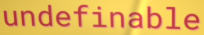
undefinable